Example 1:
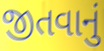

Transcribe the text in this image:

જીતવાનું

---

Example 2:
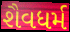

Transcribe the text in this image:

શૈવધર્મ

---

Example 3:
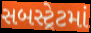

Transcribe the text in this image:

સબસ્ટ્રેટમાં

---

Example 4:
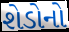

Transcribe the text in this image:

શેડોનો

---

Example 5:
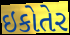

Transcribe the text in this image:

ઇકોતેર